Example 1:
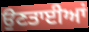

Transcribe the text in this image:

ਉਣਤਾਈਆਂ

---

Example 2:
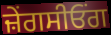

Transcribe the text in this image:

ਜ਼ੇਂਗਸੀਓਂਗ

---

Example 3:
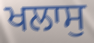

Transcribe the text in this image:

ਖਲਾਸੁ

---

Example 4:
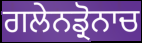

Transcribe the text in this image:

ਗਲੇਨਡ੍ਰੋਨਾਚ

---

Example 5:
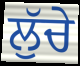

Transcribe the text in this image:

ਲੁੱਚੇ